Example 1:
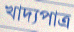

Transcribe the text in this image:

খাদ্যপাত্র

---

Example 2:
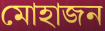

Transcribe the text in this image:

মোহাজন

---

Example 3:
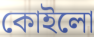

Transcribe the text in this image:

কোইলো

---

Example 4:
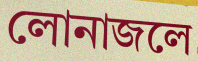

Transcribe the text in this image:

লোনাজলে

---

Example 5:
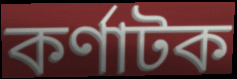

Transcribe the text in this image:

কর্ণাটক